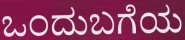
ಒಂದುಬಗೆಯ